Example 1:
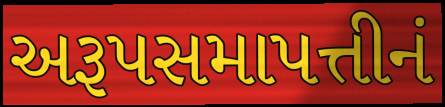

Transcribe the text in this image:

અરૂપસમાપત્તીનં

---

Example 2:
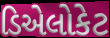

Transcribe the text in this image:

ડિએલોકેટ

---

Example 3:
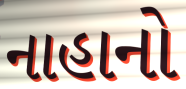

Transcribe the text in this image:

નાહાનો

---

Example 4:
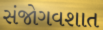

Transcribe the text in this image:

સંજોગવશાત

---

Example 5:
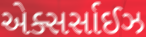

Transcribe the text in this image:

એક્સર્સાઈઝ